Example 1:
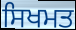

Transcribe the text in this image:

ਸਿਖਮਤ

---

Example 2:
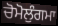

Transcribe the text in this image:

ਚੋਮੋਲੁੰਗਮਾ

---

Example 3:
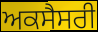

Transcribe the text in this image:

ਅਕਸੈਸਰੀ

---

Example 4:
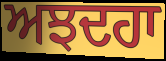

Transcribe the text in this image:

ਅਝਦਹਾ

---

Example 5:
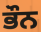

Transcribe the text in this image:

ਭੌਨ